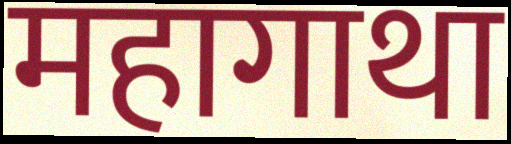
महागाथा